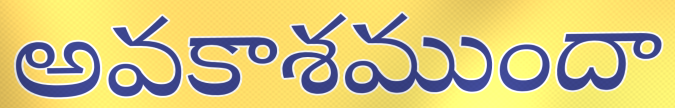
అవకాశముందా